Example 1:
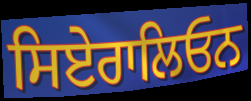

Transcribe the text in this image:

ਸਿਏਰਾਲਿਓਨ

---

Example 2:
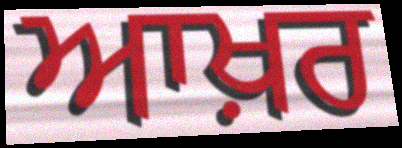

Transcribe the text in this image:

ਆਖ਼ਰ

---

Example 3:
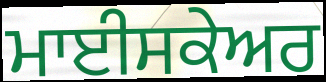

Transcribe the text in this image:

ਮਾਈਸਕੇਅਰ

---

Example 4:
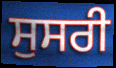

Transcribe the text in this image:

ਸੁਸਰੀ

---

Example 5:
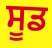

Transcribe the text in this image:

ਸੂਡ